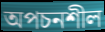
অপচনশীল